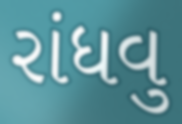
રાંધવુ